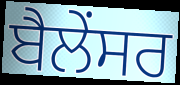
ਬੈਲੇਂਸਰ